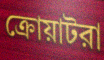
ক্রোয়াটরা